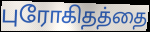
புரோகிதத்தை